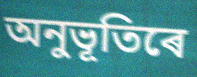
অনুভূতিৰে